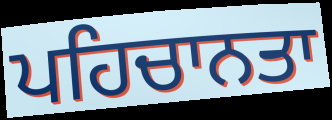
ਪਹਿਚਾਨਤਾ